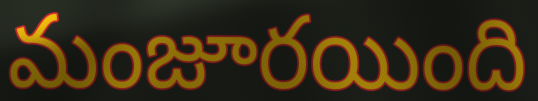
మంజూరయింది